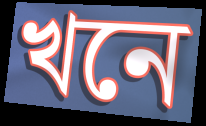
খনে